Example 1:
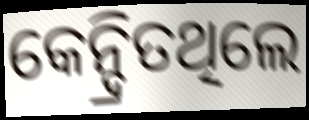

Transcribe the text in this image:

କେନ୍ଦ୍ରିତଥିଲେ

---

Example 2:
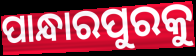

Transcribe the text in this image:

ପାନ୍ଧାରପୁରକୁ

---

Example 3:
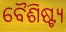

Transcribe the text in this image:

ବୈଶିଷ୍ଟ୍ୟ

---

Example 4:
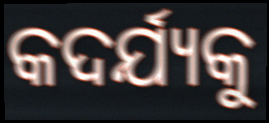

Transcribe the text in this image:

କଦର୍ଯ୍ୟକୁ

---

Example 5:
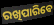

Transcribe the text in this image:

ରଖିପାରିବେ